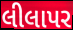
લીલાપર